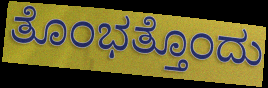
ತೊಂಭತ್ತೊಂದು